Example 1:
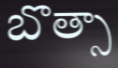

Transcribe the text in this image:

బొత్సా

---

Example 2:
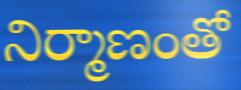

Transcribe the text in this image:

నిర్మాణంతో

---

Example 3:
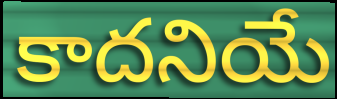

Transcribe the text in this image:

కాదనియే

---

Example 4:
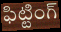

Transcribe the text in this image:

ఫిట్టింగ్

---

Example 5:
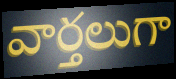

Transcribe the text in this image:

వార్తలుగా